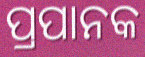
ପ୍ରପାନକ